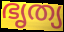
ഭൃത്യ